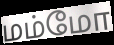
மம்மோ